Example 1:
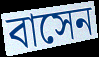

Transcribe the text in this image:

বাসেন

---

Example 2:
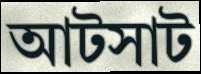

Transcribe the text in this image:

আটসাট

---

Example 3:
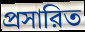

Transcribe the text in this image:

প্রসারিত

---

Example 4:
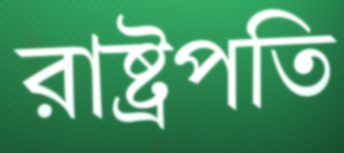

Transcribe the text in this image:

রাষ্ট্রপতি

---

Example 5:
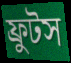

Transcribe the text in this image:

ফ্রুটস